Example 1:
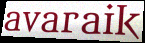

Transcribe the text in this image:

avaraik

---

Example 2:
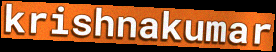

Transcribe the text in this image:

krishnakumar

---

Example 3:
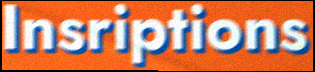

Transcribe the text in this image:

Insriptions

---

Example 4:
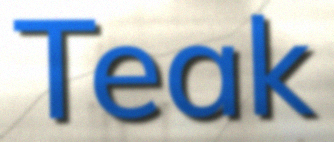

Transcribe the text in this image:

Teak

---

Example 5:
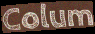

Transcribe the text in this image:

Colum